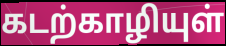
கடற்காழியுள்